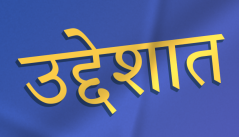
उद्देशात